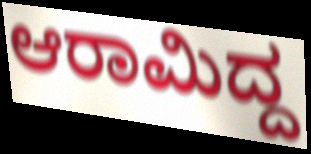
ಆರಾಮಿದ್ದ